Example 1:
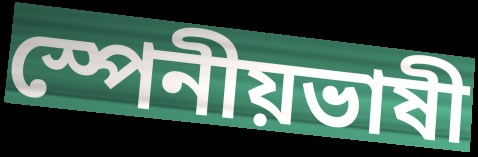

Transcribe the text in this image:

স্পেনীয়ভাষী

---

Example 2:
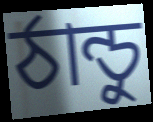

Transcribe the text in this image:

ঠান্ডু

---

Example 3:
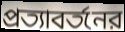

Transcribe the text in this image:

প্রত্যাবর্তনের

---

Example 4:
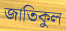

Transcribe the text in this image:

জাতিকুল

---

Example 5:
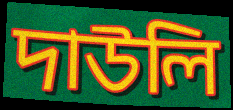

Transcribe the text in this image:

দাউলি